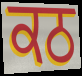
ਕਠ